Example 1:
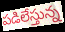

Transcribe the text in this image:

పడిలేస్తున్న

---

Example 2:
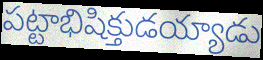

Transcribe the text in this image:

పట్టాభిషిక్తుడయ్యాడు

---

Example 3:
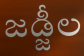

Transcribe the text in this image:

జడ్జీల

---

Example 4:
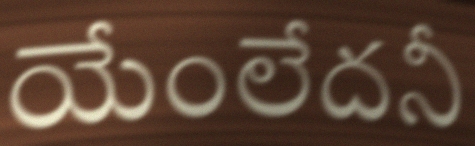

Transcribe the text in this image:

యేంలేదనీ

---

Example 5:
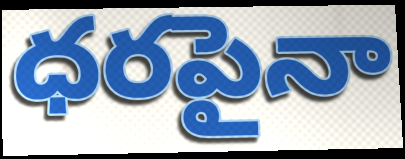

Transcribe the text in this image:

ధరపైనా